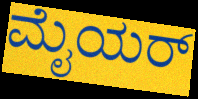
ಮೈಯರ್